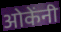
ओकेंनी